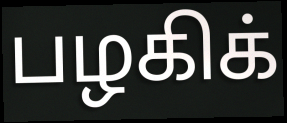
பழகிக்